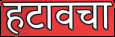
हटावचा